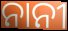
ନାନୀ